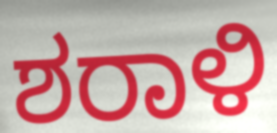
ಶರಾಳಿ